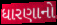
ધારણાનો